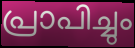
പ്രാപിച്ചും